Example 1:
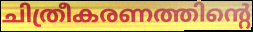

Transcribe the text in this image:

ചിത്രീകരണത്തിന്റെ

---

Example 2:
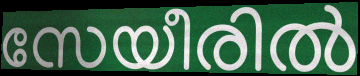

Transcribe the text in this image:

സേയീരിൽ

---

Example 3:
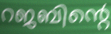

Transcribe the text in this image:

റജബിന്റെ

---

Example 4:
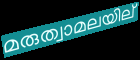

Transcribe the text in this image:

മരുത്വാമലയില്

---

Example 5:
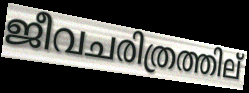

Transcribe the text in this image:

ജീവചരിത്രത്തില്